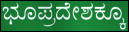
ಭೂಪ್ರದೇಶಕ್ಕೂ